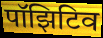
पॉझिटिव